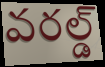
వరల్డ్